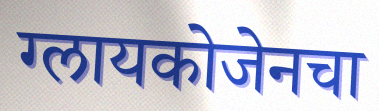
ग्लायकोजेनचा